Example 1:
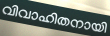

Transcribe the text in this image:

വിവാഹിതനായി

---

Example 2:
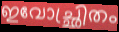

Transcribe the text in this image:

ഇവോച്ഛ്രിതം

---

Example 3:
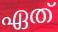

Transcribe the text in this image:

ഏത്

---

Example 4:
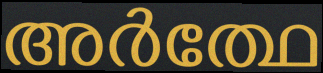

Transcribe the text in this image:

അർത്ഥേ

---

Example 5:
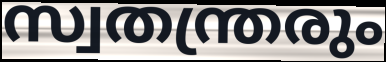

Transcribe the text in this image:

സ്വതന്ത്രരും